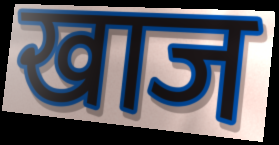
खाज